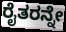
ರೈತರನ್ನೇ